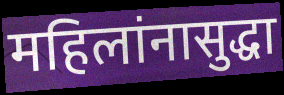
महिलांनासुद्धा